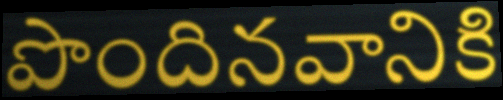
పొందినవానికి